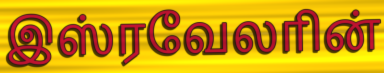
இஸ்ரவேலரின்